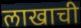
लाखाची